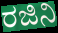
ರಜಿನಿ